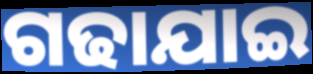
ଗଢାଯାଇ